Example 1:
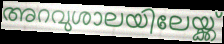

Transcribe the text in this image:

അറവുശാലയിലേയ്ക്ക്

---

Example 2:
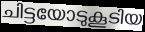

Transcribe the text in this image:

ചിട്ടയോടുകൂടിയ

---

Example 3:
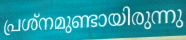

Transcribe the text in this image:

പ്രശ്നമുണ്ടായിരുന്നു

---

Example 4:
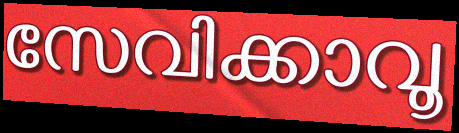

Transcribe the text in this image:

സേവിക്കാവൂ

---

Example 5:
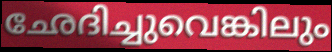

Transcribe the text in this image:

ഛേദിച്ചുവെങ്കിലും